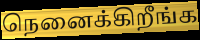
நெனைக்கிறீங்க